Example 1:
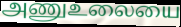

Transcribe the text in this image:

அணுஉலையை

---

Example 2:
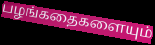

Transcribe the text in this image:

பழங்கதைகளையும்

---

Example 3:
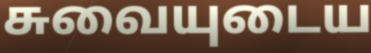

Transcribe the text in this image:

சுவையுடைய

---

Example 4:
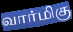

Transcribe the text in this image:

வார்மிகு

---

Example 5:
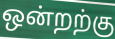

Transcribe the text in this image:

ஒன்றற்கு